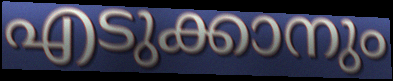
എടുക്കാനും